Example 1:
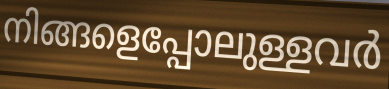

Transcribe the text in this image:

നിങ്ങളെപ്പോലുള്ളവർ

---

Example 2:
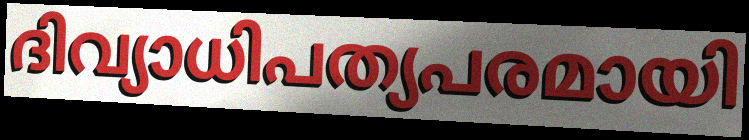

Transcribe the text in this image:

ദിവ്യാധിപത്യപരമായി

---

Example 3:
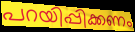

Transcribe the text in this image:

പറയിപ്പിക്കണം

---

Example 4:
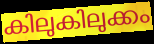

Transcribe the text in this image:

കിലുകിലുക്കം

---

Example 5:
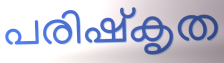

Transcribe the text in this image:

പരിഷ്കൃത